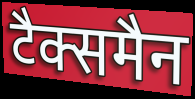
टैक्समैन